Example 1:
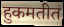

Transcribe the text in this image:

हुकमतीत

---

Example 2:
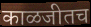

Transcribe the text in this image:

काळजीतच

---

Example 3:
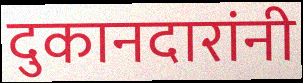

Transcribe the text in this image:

दुकानदारांनी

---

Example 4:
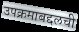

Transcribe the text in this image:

उपक्रमाबद्दलची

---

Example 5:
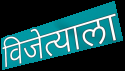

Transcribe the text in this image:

विजेत्याला